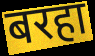
बरहा